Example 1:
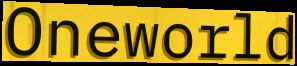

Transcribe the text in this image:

Oneworld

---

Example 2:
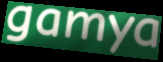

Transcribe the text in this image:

gamya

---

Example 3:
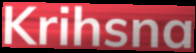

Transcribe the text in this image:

Krihsna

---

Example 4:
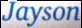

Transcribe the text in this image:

Jayson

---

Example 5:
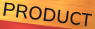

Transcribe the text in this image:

PRODUCT